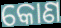
କୋଣ